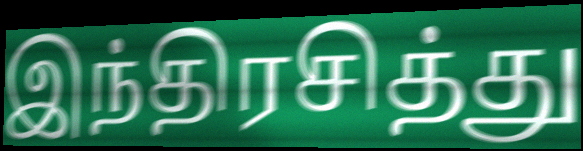
இந்திரசித்து